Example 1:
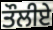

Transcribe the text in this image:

ਤੌਲੀਏ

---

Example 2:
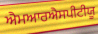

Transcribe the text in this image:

ਐਮਆਰਐਸਪੀਟੀਯੂ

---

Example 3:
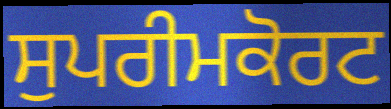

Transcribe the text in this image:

ਸੁਪਰੀਮਕੋਰਟ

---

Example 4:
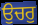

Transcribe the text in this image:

ਉਚਰੁ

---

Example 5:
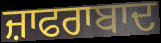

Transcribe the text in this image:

ਜ਼ਾਫਰਾਬਾਦ